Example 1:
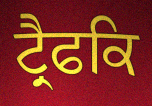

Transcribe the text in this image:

ਟ੍ਰੈਫਕਿ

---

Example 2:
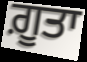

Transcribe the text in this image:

ਗ਼ੂਤਾ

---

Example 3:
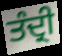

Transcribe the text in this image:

ਤੰਦ੍ਰੀ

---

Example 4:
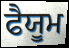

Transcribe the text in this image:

ਫੈਯੂਮ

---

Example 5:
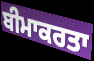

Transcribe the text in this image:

ਬੀਮਾਕਰਤਾ